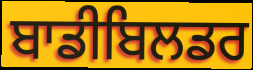
ਬਾਡੀਬਿਲਡਰ